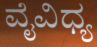
ವೈವಿಧ್ಯ